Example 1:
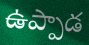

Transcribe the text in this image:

ఉప్పాడ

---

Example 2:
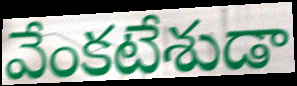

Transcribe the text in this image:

వేంకటేశుడా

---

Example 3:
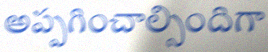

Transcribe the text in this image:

అప్పగించాల్సిందిగా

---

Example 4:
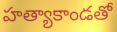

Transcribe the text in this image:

హత్యాకాండతో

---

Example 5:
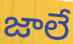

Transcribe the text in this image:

జాలే